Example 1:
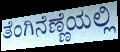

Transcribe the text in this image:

ತೆಂಗಿನೆಣ್ಣೆಯಲ್ಲಿ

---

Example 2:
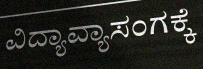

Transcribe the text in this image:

ವಿದ್ಯಾವ್ಯಾಸಂಗಕ್ಕೆ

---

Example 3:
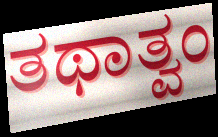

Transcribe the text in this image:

ತಥಾತ್ವಂ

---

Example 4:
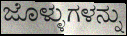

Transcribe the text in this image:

ಜೊಳ್ಳುಗಳನ್ನು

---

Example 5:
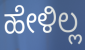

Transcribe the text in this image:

ಹೇಳಿಲ್ಲ